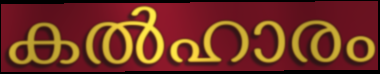
കൽഹാരം